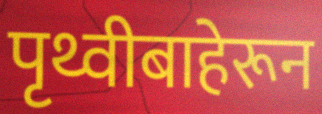
पृथ्वीबाहेरून